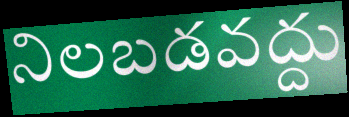
నిలబడవద్దు